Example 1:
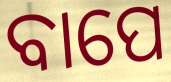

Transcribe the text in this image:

ବାପେ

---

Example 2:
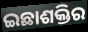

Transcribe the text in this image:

ଇଛାଶକ୍ତିର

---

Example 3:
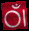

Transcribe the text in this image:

ଠାଁ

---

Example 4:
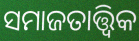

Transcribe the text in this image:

ସମାଜତାତ୍ତ୍ୱିକ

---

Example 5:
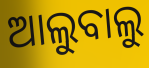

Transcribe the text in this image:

ଆଲୁବାଲୁ